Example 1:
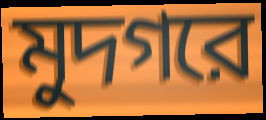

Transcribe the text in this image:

মুদগরে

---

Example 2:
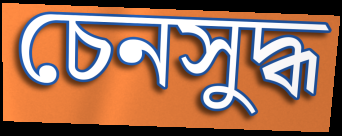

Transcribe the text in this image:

চেনসুদ্ধ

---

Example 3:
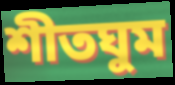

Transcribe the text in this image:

শীতঘুম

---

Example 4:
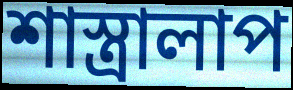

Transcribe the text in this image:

শাস্ত্রালাপ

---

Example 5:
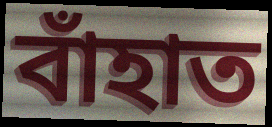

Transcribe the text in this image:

বাঁহাত